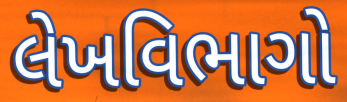
લેખવિભાગો